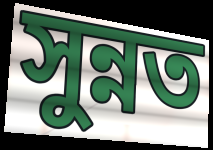
সুন্নত